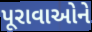
પૂરાવાઓને